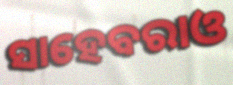
ସାହେବରାଓ